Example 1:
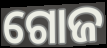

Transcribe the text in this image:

ଗୋଜ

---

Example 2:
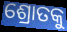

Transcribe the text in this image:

ଶ୍ରୋତକୁ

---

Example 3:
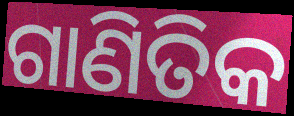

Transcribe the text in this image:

ଗାଣିତିକ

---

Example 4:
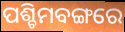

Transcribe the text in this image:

ପଶ୍ଚିମବଙ୍ଗରେ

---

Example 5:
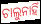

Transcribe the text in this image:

ଚାଲୁନାହିଁ